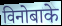
विनोबाके